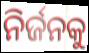
ନିର୍ଜନକୁ